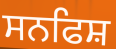
ਸਨਫਿਸ਼